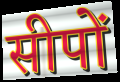
सीपों